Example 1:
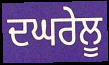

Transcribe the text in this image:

ਦਘਰੇਲੂ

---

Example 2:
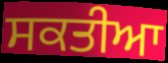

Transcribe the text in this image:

ਸਕਤੀਆ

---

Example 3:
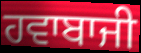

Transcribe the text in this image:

ਹਵਾਬਾਜੀ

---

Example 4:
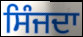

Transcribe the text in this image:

ਸਿੰਜਦਾ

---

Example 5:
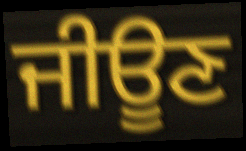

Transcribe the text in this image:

ਜੀਊਣ